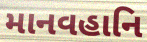
માનવહાનિ